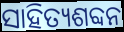
ସାହିତ୍ୟଶବ୍ଦନ